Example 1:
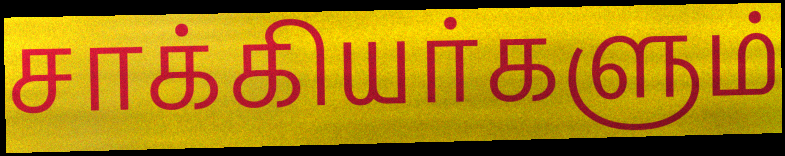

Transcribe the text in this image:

சாக்கியர்களும்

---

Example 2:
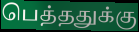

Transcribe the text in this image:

பெத்ததுக்கு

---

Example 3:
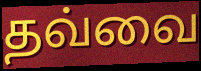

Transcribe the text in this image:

தவ்வை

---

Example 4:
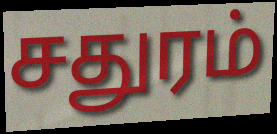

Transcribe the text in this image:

சதுரம்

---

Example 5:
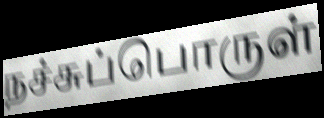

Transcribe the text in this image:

நச்சுப்பொருள்